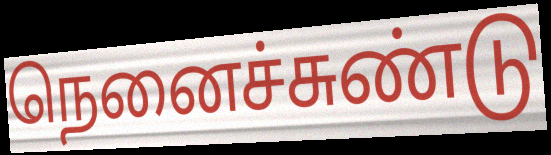
நெனைச்சுண்டு